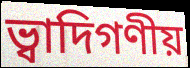
ভ্বাদিগণীয়